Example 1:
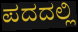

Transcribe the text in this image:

ಪದದಲ್ಲಿ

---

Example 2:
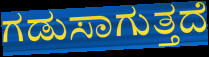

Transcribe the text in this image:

ಗಡುಸಾಗುತ್ತದೆ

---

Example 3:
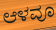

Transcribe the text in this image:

ಆಳವೂ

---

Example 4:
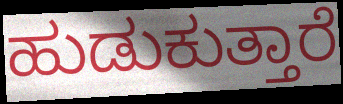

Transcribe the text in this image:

ಹುಡುಕುತ್ತಾರೆ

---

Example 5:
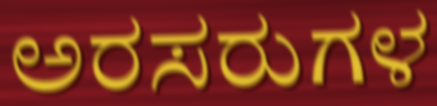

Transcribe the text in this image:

ಅರಸರುಗಳ